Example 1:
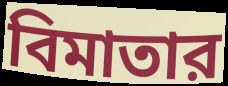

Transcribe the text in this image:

বিমাতার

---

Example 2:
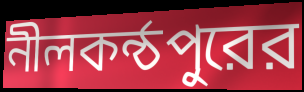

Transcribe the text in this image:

নীলকন্ঠপুরের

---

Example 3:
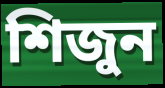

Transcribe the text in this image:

শিজুন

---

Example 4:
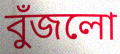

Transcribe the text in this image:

বুঁজলো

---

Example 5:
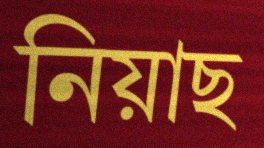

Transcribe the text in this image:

নিয়াছ